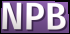
NPB